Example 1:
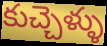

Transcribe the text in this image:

కుచ్చెళ్ళు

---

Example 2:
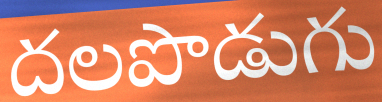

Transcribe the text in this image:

దలపొడుగు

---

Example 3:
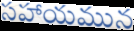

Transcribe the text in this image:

సహాయమున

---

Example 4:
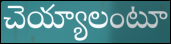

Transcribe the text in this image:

చెయ్యాలంటూ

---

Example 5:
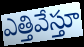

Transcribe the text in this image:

ఎత్తివేస్తూ